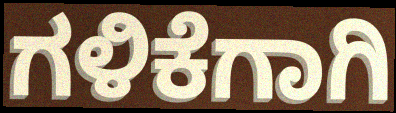
ಗಳಿಕೆಗಾಗಿ